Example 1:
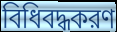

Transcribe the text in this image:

বিধিবদ্ধকরণ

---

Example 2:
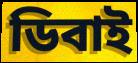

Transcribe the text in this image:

ডিবাই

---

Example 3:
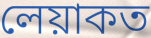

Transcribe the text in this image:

লেয়াকত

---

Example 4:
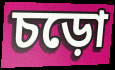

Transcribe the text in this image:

চড়ো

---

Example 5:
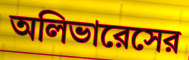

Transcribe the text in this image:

অলিভারেসের